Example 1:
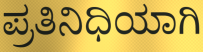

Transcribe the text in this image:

ಪ್ರತಿನಿಧಿಯಾಗಿ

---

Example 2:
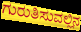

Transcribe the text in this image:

ಗುರುತಿಸುವಲ್ಲಿನ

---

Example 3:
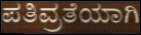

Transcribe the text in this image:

ಪತಿವ್ರತೆಯಾಗಿ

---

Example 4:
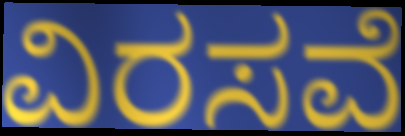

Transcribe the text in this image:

ವಿರಸವೆ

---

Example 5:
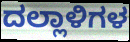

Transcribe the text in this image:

ದಲ್ಲಾಳಿಗಳ